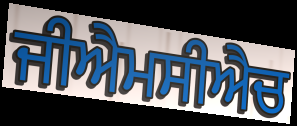
ਜੀਐਮਸੀਐਚ